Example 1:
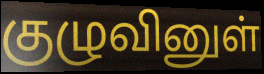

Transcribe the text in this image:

குழுவினுள்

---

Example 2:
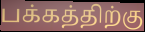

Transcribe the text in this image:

பக்கத்திற்கு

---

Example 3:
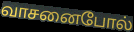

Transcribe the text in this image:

வாசனைபோல்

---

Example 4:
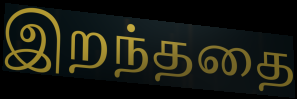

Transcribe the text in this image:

இறந்ததை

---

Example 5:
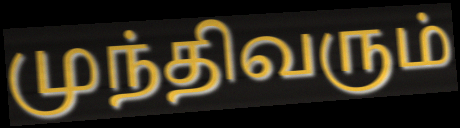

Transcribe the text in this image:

முந்திவரும்